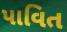
પાવિત